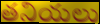
తనియలు